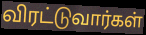
விரட்டுவார்கள்